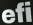
efi